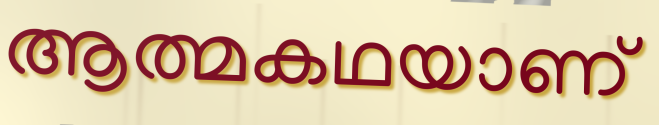
ആത്മകഥയാണ്